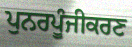
ਪੁਨਰਪੂੰਜੀਕਰਣ